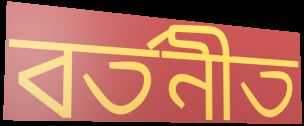
বৰ্তনীত